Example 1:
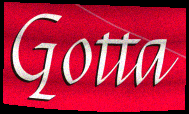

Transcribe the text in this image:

Gotta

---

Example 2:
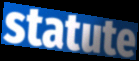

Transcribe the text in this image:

statute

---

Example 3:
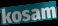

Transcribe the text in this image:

kosam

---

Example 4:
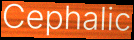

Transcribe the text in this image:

Cephalic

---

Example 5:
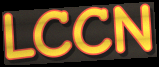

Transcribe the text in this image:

LCCN